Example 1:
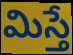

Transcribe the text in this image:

మిస్తే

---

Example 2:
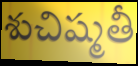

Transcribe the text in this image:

శుచిష్మతీ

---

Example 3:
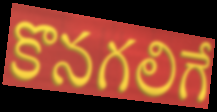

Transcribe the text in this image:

కొనగలిగే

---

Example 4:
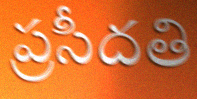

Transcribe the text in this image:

ప్రసీదతి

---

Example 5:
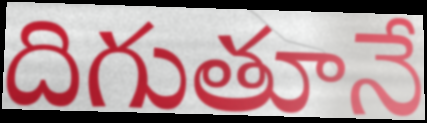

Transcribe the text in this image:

దిగుతూనే